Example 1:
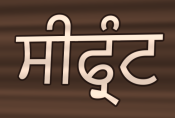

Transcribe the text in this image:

ਸੀਫ੍ਰੰਟ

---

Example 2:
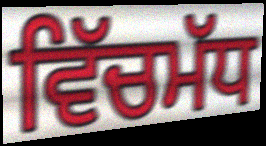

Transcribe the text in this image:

ਵਿੱਚਮੱਧ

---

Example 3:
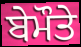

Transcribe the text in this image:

ਬੇਮੌਤੇ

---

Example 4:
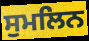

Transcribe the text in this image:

ਸੁਮਲਿਨ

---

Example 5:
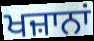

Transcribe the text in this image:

ਖਜ਼ਾਨਾਂ